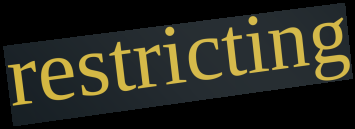
restricting